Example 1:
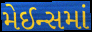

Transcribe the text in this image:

મેઈન્સમાં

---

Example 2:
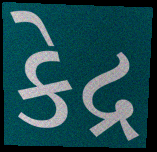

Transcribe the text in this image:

કેદ્ર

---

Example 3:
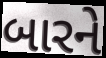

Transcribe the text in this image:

બારને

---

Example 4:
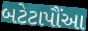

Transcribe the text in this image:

બટેટાપૌંઆ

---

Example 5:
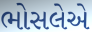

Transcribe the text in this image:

ભોસલેએ